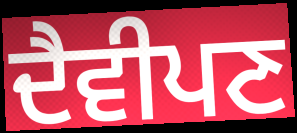
ਦੈਵੀਪਣ